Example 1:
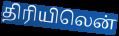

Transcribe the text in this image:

திரியிலென்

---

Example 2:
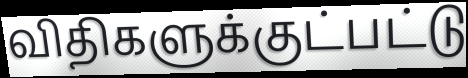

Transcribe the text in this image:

விதிகளுக்குட்பட்டு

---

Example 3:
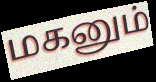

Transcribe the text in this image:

மகனும்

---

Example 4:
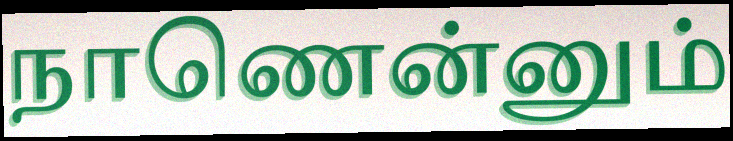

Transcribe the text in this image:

நாணென்னும்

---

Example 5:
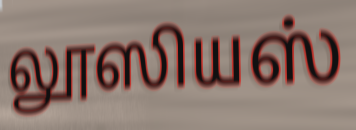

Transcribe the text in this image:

லூஸியஸ்